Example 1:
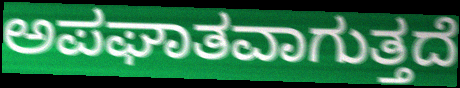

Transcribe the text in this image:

ಅಪಘಾತವಾಗುತ್ತದೆ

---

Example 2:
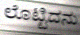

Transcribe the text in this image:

ಲೊಟ್ಟಿದನು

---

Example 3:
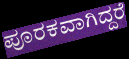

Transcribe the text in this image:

ಪೂರಕವಾಗಿದ್ದರೆ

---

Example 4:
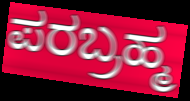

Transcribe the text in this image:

ಪರಬ್ರಹ್ಮ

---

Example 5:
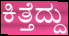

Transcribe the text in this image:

ಕಿತ್ತೆದ್ದು